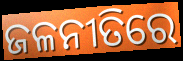
ଜଳନୀତିରେ